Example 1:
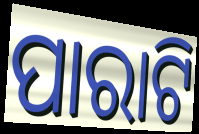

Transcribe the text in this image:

ପାରାଟି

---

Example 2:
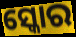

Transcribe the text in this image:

ସ୍କୋର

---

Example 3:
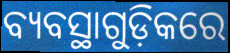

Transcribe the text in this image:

ବ୍ୟବସ୍ଥାଗୁଡ଼ିକରେ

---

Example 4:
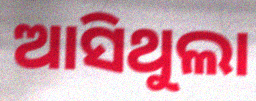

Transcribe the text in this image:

ଆସିଥୁଲା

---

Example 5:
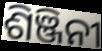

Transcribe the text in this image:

ଶିଞ୍ଜିନୀ